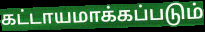
கட்டாயமாக்கப்படும்